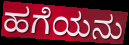
ಹಗೆಯನು